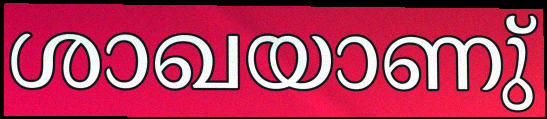
ശാഖയാണു്